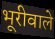
भूरीवाले